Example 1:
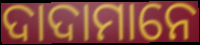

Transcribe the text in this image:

ଦାଦାମାନେ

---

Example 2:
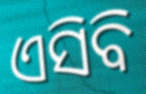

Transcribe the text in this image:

ଏସିବି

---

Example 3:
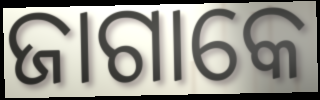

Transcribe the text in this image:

ଜାଗାକେ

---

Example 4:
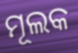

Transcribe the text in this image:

ମୂଲକ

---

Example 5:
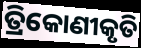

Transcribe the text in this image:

ତ୍ରିକୋଣୀକୃତି